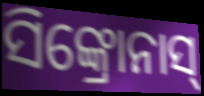
ସିଙ୍କ୍ରୋନାସ୍